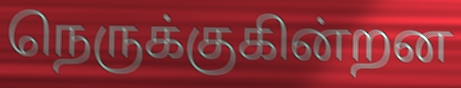
நெருக்குகின்றன